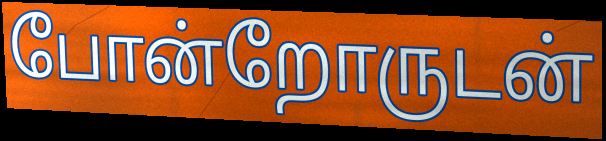
போன்றோருடன்